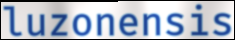
luzonensis